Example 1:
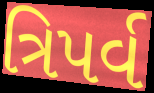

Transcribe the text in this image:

ત્રિપર્વ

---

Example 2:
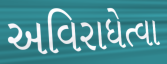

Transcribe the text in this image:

અવિરાધેત્વા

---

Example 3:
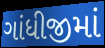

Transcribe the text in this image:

ગાંધીજીમાં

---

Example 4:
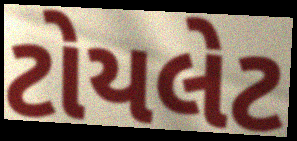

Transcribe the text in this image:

ટોયલેટ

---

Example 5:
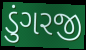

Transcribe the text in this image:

ડુંગરજી